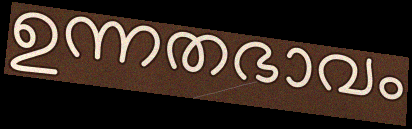
ഉന്നതഭാവം